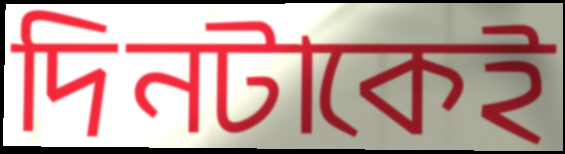
দিনটাকেই